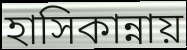
হাসিকান্নায়